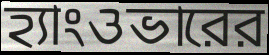
হ্যাংওভারের